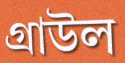
গ্রাউল